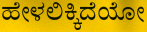
ಹೇಳಲಿಕ್ಕಿದೆಯೋ